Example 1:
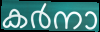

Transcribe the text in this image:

കർനാ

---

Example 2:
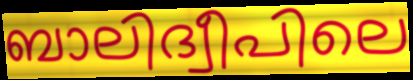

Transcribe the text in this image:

ബാലിദ്വീപിലെ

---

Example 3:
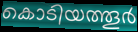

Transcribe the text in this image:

കൊടിയത്തൂർ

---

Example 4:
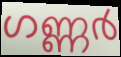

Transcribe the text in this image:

ഗണ്ണർ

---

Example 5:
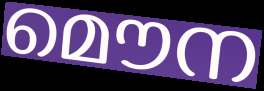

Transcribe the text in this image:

മൌന